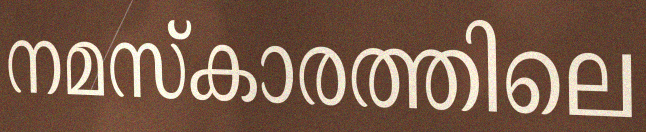
നമസ്കാരത്തിലെ